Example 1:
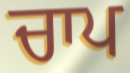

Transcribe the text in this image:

ਚਾਪ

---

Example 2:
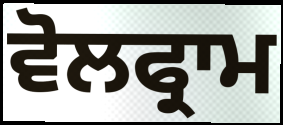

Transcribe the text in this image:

ਵੋਲਫ੍ਰਾਮ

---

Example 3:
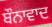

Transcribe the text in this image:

ਬੌਨਾਵਾਦ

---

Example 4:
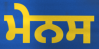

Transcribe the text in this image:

ਮੇਨਸ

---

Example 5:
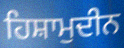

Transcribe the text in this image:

ਹਿਸ਼ਾਮੁਦੀਨ